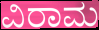
ವಿರಾಮ